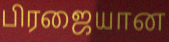
பிரஜையான